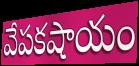
వేపకషాయం